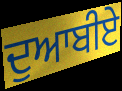
ਦੁਆਬੀਏ